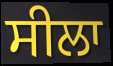
ਸੀਲਾ